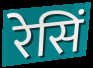
रेसिं